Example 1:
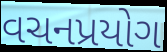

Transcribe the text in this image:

વચનપ્રયોગ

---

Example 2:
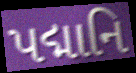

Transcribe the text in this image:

પદ્માનિ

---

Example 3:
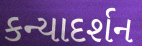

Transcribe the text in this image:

કન્યાદર્શન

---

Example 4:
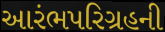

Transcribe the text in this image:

આરંભપરિગ્રહની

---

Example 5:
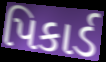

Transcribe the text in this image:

પિકાર્ડ